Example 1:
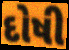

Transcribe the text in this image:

દોષી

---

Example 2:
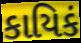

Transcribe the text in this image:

કાયિકં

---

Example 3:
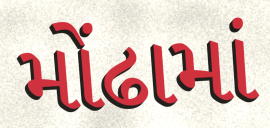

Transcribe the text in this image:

મોંઢામાં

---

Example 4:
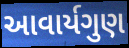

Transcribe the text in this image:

આવાર્યગુણ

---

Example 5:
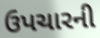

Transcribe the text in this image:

ઉપચારની